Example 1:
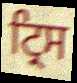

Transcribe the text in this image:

ਟ੍ਰਿਸ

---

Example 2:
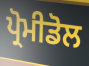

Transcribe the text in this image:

ਪ੍ਰੋਮੀਡੋਲ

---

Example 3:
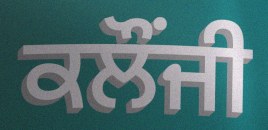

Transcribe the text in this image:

ਕਲੌਂਜੀ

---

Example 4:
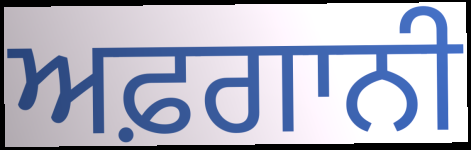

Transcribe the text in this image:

ਅਫ਼ਗਾਨੀ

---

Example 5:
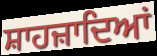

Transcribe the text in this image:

ਸ਼ਾਹਜ਼ਾਦਿਆਂ